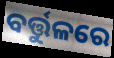
ବର୍ତ୍ତୁଳରେ